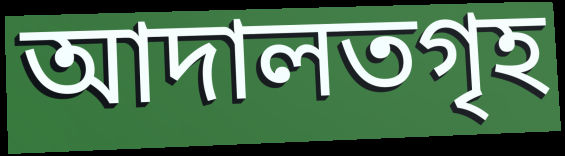
আদালতগৃহ